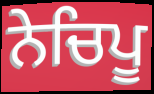
ਨੇਚਿਪੂ